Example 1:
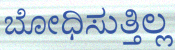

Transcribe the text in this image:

ಬೋಧಿಸುತ್ತಿಲ್ಲ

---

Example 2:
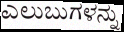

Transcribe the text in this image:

ಎಲುಬುಗಳನ್ನು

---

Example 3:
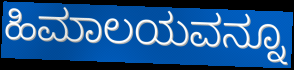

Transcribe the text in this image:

ಹಿಮಾಲಯವನ್ನೂ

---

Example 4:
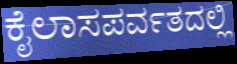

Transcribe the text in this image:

ಕೈಲಾಸಪರ್ವತದಲ್ಲಿ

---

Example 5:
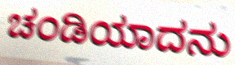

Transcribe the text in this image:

ಚಂಡಿಯಾದನು